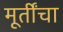
मूर्तींचा